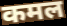
कमल